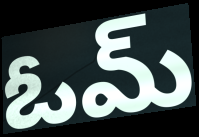
ఓమ్